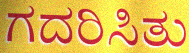
ಗದರಿಸಿತು